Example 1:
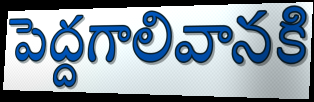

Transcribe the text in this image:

పెద్దగాలివానకి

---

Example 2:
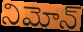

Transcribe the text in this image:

నిమోన్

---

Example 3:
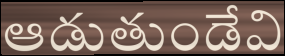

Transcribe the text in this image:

ఆడుతుండేవి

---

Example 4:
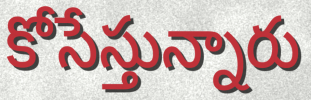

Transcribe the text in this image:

కోసేస్తున్నారు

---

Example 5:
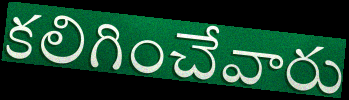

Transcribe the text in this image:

కలిగించేవారు